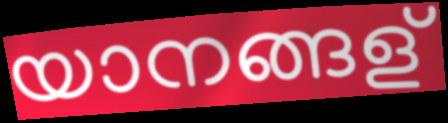
യാനങ്ങള്